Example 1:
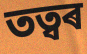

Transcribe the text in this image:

তত্বৰ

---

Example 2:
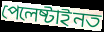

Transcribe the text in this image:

পেলেষ্টাইনত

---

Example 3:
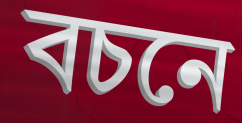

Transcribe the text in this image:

বচনে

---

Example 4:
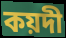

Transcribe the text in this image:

কয়দী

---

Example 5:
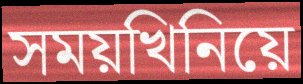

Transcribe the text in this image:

সময়খিনিয়ে